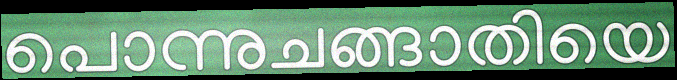
പൊന്നുചങ്ങാതിയെ